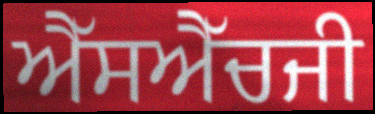
ਐੱਸਐੱਚਜੀ